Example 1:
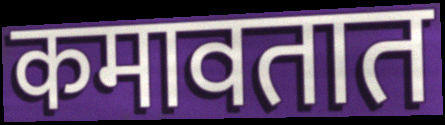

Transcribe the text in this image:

कमावतात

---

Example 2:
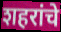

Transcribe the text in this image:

शहरांचे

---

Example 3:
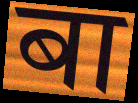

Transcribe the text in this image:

बा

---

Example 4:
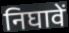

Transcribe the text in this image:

निघावें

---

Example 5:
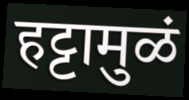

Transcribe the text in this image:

हट्टामुळं